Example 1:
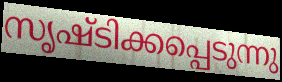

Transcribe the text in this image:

സൃഷ്ടിക്കപ്പെടുന്നു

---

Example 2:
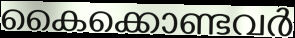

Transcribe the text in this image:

കൈക്കൊണ്ടവർ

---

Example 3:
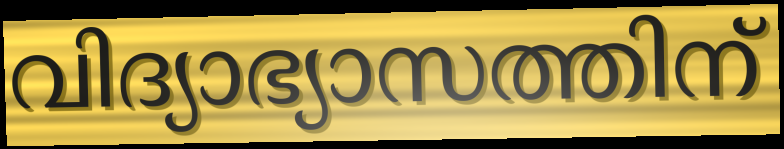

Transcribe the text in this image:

വിദ്യാഭ്യാസത്തിന്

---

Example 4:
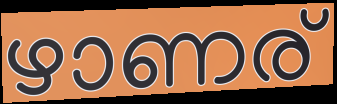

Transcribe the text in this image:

ഴാണര്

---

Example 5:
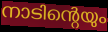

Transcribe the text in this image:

നാടിന്റെയും